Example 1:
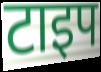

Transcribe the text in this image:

टाइप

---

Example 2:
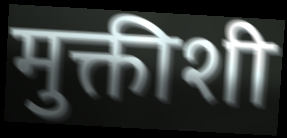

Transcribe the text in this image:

मुक्तीशी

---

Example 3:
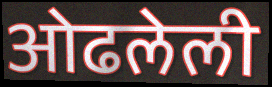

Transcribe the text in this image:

ओढलेली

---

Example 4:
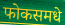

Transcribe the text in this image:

फोकसमधे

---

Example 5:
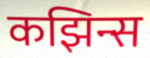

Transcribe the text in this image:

कझिन्स